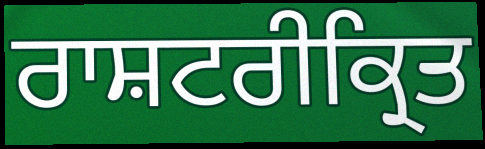
ਰਾਸ਼ਟਰੀਕ੍ਰਿਤ